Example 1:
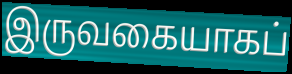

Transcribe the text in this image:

இருவகையாகப்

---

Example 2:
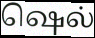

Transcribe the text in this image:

ஷெல்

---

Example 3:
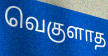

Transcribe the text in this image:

வெகுளாத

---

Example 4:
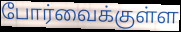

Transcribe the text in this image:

போர்வைக்குள்ள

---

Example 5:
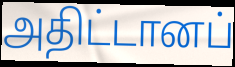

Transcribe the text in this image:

அதிட்டானப்